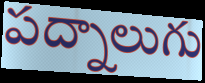
పద్నాలుగు